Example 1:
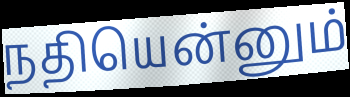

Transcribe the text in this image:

நதியென்னும்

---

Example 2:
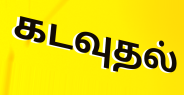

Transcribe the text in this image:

கடவுதல்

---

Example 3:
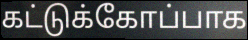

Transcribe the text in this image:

கட்டுக்கோப்பாக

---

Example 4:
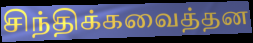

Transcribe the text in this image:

சிந்திக்கவைத்தன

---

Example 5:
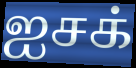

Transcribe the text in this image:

ஐசக்